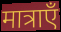
मात्राएँ